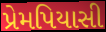
પ્રેમપિયાસી